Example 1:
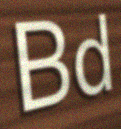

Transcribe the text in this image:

Bd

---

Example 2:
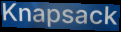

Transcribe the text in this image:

Knapsack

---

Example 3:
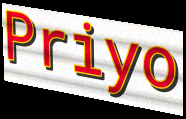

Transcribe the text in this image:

Priyo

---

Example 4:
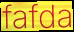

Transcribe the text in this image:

fafda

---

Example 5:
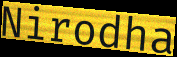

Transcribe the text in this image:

Nirodha